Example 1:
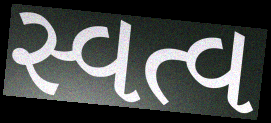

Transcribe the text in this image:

સ્વત્વ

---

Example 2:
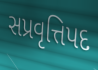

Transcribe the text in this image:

સપ્રવૃત્તિપદ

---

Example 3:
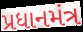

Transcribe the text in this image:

પ્રધાનમંત્ર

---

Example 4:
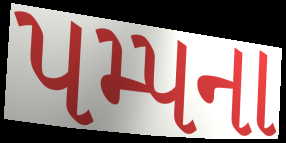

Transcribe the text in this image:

પમ્પના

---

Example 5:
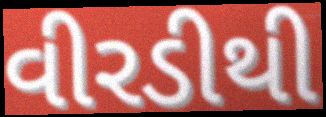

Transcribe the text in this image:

વીરડીથી